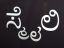
ಸ್ಮೈಲಿ